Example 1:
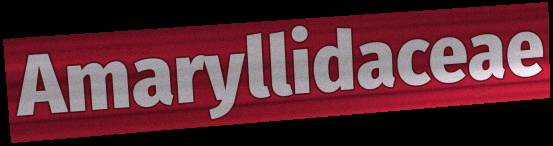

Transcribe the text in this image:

Amaryllidaceae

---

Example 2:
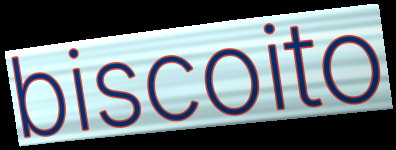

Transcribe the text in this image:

biscoito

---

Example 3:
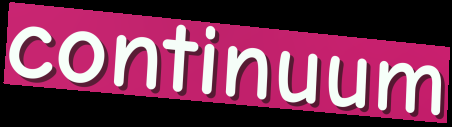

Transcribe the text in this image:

continuum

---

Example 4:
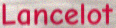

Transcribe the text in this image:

Lancelot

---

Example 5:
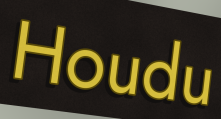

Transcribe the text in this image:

Houdu